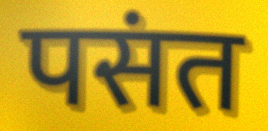
पसंत